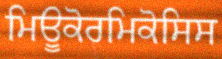
ਮਿਊਕੋਰਮਿਕੋਸਿਸ